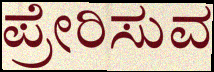
ಪ್ರೇರಿಸುವ